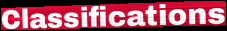
Classifications